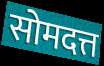
सोमदत्त